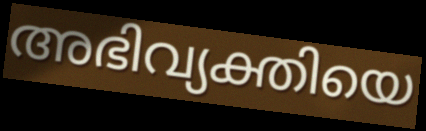
അഭിവ്യക്തിയെ